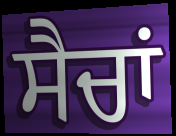
ਸੈਚਾਂ